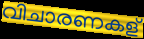
വിചാരണകള്